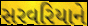
સરવરિયાને